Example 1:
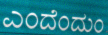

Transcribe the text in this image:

ಎಂದೆಂದುಂ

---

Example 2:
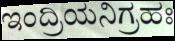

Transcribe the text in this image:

ಇಂದ್ರಿಯನಿಗ್ರಹಃ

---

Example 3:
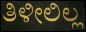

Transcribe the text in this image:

ತಿಳೀಲಿಲ್ಲ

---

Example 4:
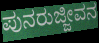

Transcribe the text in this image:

ಪುನರುಜ್ಜೀವನ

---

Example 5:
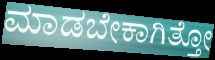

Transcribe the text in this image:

ಮಾಡಬೇಕಾಗಿತ್ತೋ